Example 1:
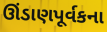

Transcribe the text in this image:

ઊંડાણપૂર્વકના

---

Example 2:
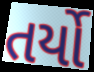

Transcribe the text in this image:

તર્યો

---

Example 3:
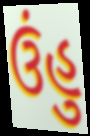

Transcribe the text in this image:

ઉંહુ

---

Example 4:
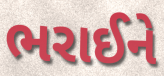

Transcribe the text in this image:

ભરાઈને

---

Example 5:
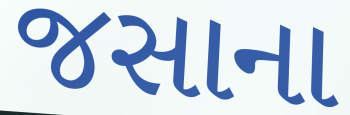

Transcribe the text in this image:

જસાના